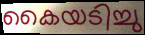
കൈയടിച്ചു